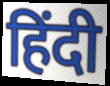
हिंदी